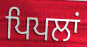
ਪਿਪਲਾਂ